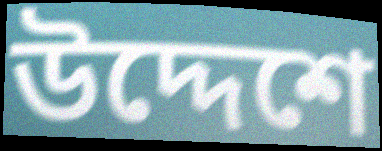
উদ্দেশে